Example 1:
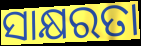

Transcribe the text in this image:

ସାକ୍ଷରତା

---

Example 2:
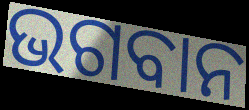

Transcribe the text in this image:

ଭଗବାନ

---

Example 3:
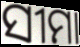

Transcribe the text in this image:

ସୀମା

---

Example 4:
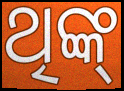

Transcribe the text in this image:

ଥିଙ୍କ୍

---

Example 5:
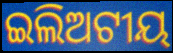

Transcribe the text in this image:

ଇଲିଅଟୀୟ